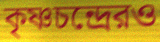
কৃষ্ণচন্দ্রেরও